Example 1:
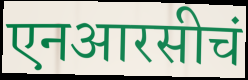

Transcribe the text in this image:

एनआरसीचं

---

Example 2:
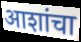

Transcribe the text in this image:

आशांचा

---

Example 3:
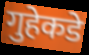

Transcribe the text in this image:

गुहेकडे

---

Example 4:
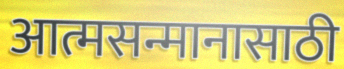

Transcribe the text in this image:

आत्मसन्मानासाठी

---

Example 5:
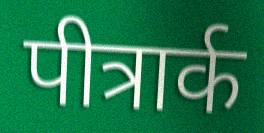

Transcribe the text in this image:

पीत्रार्क